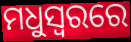
ମଧୁସ୍ୱରରେ